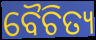
ବୈଚିତ୍ୟ